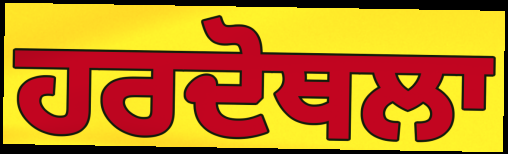
ਹਰਦੋਥਲਾ